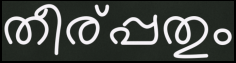
തീര്പ്പതും